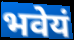
भवेयं